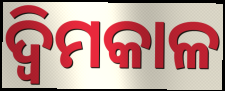
ଦ୍ବିମକାଳ